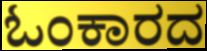
ಓಂಕಾರದ